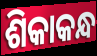
ଶିକାକନ୍ଧ